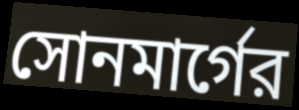
সোনমার্গের